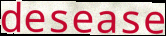
desease